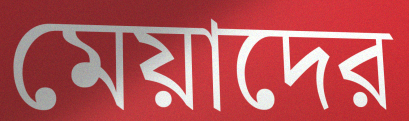
মেয়াদের